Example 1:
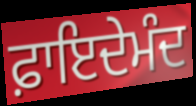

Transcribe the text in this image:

ਫ਼ਾਇਦੇਮੰਦ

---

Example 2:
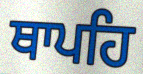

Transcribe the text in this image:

ਥਾਪਹਿ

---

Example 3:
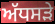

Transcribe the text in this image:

ਅੱਧਸੜੇ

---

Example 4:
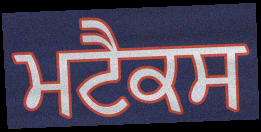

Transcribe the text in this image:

ਮਟੈਕਸ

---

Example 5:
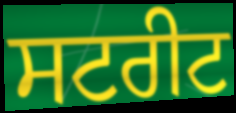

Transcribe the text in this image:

ਸਟਰੀਟ